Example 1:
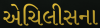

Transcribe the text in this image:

એચિલીસના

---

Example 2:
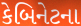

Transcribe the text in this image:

કેબિનેટના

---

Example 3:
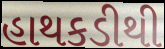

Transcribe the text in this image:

હાથકડીથી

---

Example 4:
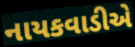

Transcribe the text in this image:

નાયકવાડીએ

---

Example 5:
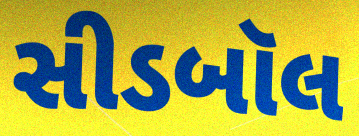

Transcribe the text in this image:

સીડબૉલ